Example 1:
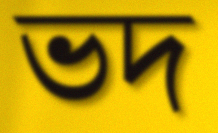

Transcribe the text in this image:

ভদ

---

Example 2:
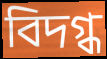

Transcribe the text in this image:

বিদগ্ধ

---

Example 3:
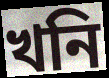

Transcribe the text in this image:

খনি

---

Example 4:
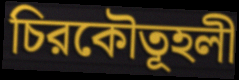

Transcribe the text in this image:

চিরকৌতূহলী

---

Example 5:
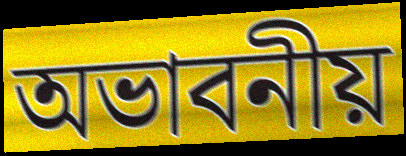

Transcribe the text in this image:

অভাবনীয়